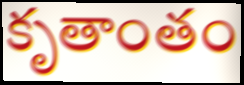
కృతాంతం